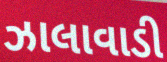
ઝાલાવાડી